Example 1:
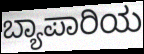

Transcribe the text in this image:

ಬ್ಯಾಪಾರಿಯ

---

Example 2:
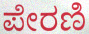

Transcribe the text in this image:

ಪೇರಣಿ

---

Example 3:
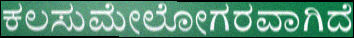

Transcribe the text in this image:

ಕಲಸುಮೇಲೋಗರವಾಗಿದೆ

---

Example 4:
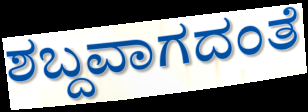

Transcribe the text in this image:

ಶಬ್ದವಾಗದಂತೆ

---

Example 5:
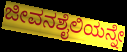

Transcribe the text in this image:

ಜೀವನಶೈಲಿಯನ್ನೇ